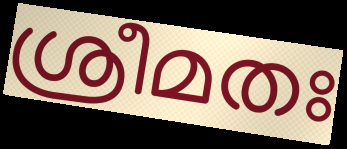
ശ്രീമതഃ